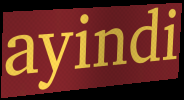
ayindi